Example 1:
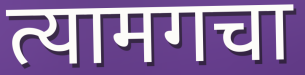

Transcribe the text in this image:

त्यामगचा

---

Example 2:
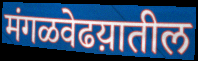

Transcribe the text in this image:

मंगळवेढय़ातील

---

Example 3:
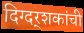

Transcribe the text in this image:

दिग्दर्शकांची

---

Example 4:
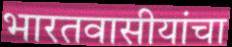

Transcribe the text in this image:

भारतवासीयांचा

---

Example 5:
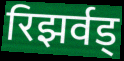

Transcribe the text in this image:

रिझर्वड्